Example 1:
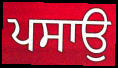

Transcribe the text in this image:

ਪਸਾਉ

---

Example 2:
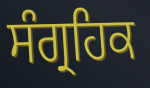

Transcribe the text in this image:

ਸੰਗ੍ਰਹਿਕ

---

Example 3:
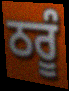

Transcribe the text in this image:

ਠਰੂੰ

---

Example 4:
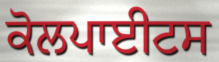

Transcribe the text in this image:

ਕੋਲਪਾਈਟਸ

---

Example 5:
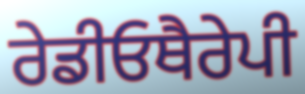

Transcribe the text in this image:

ਰੇਡੀਓਥੈਰੇਪੀ